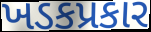
ખડકપ્રકાર